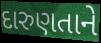
દારુણતાને